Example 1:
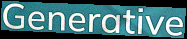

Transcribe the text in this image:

Generative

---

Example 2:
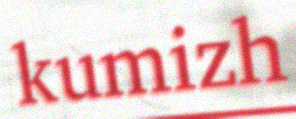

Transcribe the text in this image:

kumizh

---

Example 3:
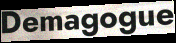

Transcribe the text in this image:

Demagogue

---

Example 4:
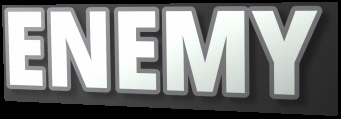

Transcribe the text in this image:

ENEMY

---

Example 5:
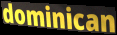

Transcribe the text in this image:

dominican